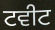
ਟਵੀਟ